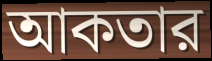
আকতার